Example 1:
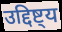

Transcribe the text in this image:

उद्दिष्ट्य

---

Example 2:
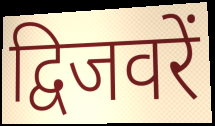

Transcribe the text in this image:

द्विजवरें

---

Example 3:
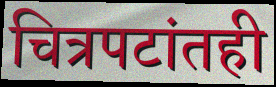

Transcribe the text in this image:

चित्रपटांतही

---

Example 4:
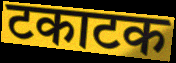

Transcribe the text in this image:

टकाटक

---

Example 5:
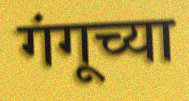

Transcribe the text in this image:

गंगूच्या